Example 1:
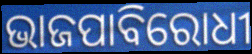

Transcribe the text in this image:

ଭାଜପାବିରୋଧୀ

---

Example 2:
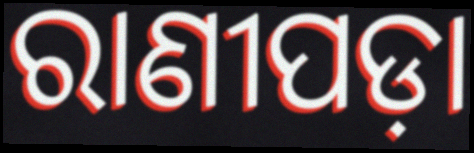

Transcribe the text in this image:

ରାଣୀପଡ଼ା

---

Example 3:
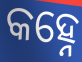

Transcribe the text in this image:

କହ୍ନେ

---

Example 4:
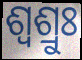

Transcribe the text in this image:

ଶ୍ଵଶ୍ରୁଃ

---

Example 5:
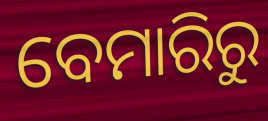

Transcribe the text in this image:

ବେମାରିରୁ